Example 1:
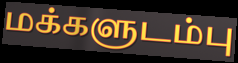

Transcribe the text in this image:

மக்களுடம்பு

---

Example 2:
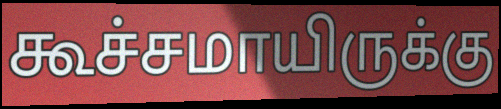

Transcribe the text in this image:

கூச்சமாயிருக்கு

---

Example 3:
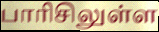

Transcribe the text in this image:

பாரிசிலுள்ள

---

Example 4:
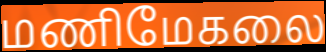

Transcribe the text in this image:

மணிமேகலை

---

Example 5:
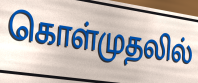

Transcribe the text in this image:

கொள்முதலில்